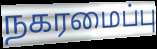
நகரமைப்பு